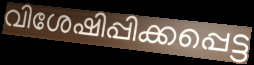
വിശേഷിപ്പിക്കപ്പെട്ട